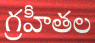
గ్రహీతల